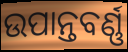
ଉପାନ୍ତବର୍ଣ୍ଣ